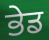
ਭੇਡ